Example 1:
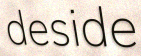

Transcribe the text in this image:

deside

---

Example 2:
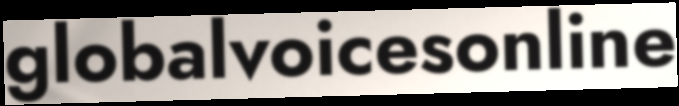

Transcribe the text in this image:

globalvoicesonline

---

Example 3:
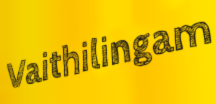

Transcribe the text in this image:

Vaithilingam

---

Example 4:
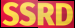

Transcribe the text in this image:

SSRD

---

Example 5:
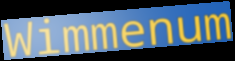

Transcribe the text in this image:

Wimmenum